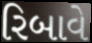
રિબાવે